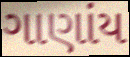
ગાણાંય